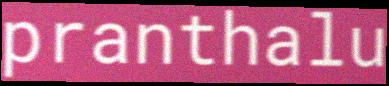
pranthalu